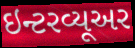
ઇન્ટરવ્યૂઅર